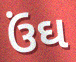
ઉંઘ